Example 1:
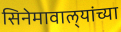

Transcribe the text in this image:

सिनेमावाल्यांच्या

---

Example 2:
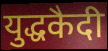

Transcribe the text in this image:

युद्धकैदी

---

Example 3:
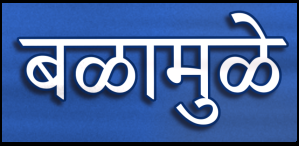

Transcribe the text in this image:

बळामुळे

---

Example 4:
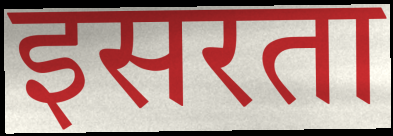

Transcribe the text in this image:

इसरता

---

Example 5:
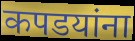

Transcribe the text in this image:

कपडयांना